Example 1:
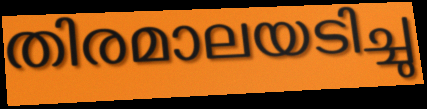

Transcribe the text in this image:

തിരമാലയടിച്ചു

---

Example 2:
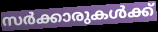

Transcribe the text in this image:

സർക്കാരുകൾക്ക്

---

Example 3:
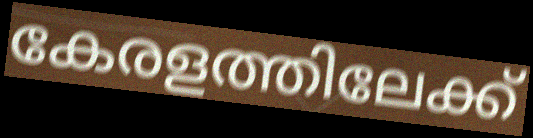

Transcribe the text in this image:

കേരളത്തിലേക്ക്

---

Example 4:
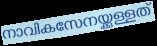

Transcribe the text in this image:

നാവികസേനയ്ക്കുള്ളത്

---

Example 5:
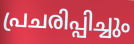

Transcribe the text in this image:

പ്രചരിപ്പിച്ചും